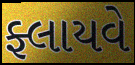
ફ્લાયવે